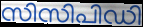
സിസിപിഡി